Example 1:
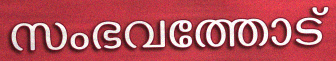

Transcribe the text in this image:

സംഭവത്തോട്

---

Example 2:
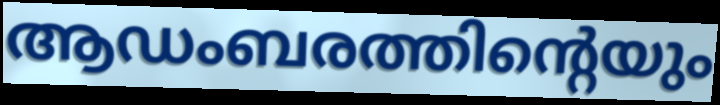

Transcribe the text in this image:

ആഡംബരത്തിന്റെയും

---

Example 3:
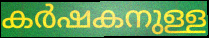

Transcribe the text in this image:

കർഷകനുള്ള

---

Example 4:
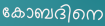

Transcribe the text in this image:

കോബദിനെ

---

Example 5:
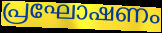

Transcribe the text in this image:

പ്രഘോഷണം